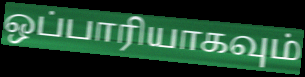
ஒப்பாரியாகவும்